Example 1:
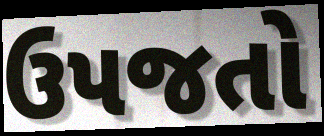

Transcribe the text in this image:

ઉપજતો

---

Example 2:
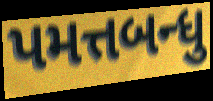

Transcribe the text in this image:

પમત્તબન્ધુ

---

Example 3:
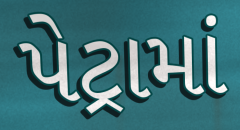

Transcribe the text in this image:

પેટ્રામાં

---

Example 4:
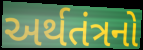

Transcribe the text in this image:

અર્થતંત્રનો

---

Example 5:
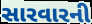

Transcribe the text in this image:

સારવારની